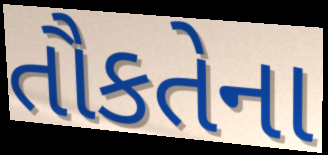
તૌકતેના